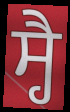
ਸ੍ਹੈ